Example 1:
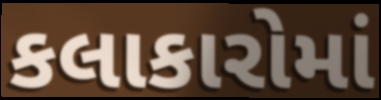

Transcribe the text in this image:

કલાકારોમાં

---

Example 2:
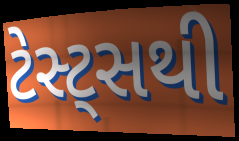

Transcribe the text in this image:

ટેસ્ટ્સથી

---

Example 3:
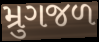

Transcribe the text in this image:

મ્રુગજળ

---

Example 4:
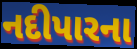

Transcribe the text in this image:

નદીપારના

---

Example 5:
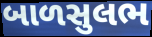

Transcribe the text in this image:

બાળસુલભ